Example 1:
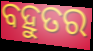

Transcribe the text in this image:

ବହୁତର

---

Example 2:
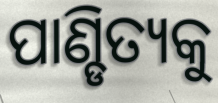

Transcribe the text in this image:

ପାଣ୍ଡିତ୍ୟକୁ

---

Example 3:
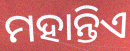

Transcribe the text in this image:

ମହାନ୍ତିଏ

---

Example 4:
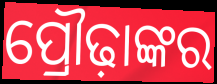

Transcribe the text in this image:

ପ୍ରୌଢ଼ାଙ୍କର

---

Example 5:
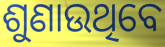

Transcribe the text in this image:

ଶୁଣାଉଥିବେ